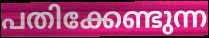
പതിക്കേണ്ടുന്ന